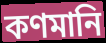
কণমানি